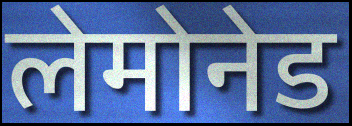
लेमोनेड